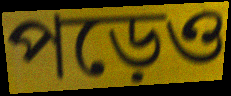
পড়েও